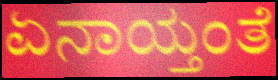
ಏನಾಯ್ತಂತೆ